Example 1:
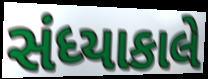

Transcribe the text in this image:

સંધ્યાકાલે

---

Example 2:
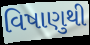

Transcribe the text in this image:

વિષાણુથી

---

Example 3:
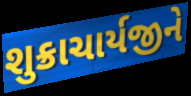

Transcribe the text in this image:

શુક્રાચાર્યજીને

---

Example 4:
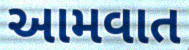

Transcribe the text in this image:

આમવાત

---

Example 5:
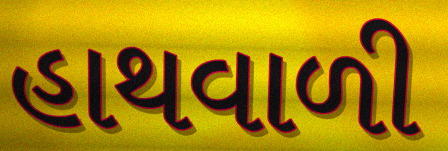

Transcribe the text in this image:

હાથવાળી